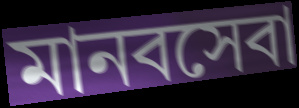
মানবসেবা